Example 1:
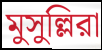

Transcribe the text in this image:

মুসুল্লিরা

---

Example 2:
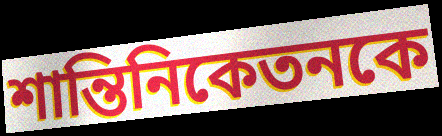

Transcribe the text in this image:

শান্তিনিকেতনকে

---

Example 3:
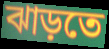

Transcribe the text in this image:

ঝাড়তে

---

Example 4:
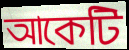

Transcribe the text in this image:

আকেটি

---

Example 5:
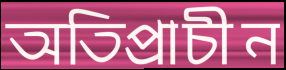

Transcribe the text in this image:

অতিপ্রাচীন